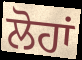
ਲੋਹਾਂ